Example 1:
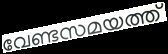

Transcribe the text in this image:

വേണ്ടസമയത്ത്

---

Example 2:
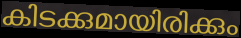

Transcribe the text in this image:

കിടക്കുമായിരിക്കും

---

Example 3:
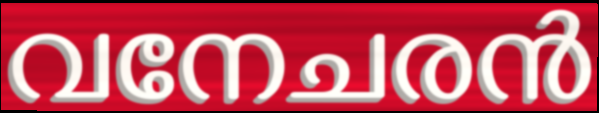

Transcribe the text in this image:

വനേചരൻ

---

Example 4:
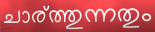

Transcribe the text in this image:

ചാര്ത്തുന്നതും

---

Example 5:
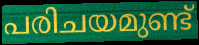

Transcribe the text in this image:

പരിചയമുണ്ട്